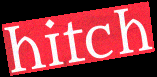
hitch